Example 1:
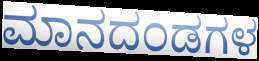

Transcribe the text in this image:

ಮಾನದಂಡಗಳ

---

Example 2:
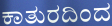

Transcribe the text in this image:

ಕಾತುರದಿಂದ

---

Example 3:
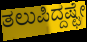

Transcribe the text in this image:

ತಲುಪಿದ್ದಷ್ಟೇ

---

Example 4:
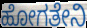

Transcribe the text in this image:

ಹೋಗತೇನಿ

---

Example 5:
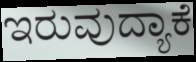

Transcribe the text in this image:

ಇರುವುದ್ಯಾಕೆ